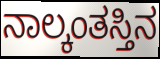
ನಾಲ್ಕಂತಸ್ತಿನ